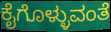
ಕೈಗೊಳ್ಳುವಂತೆ